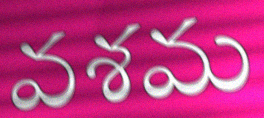
వశమ